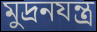
মুদ্রনযন্ত্র